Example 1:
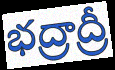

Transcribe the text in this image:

భద్రాద్రీ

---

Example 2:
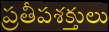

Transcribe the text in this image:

ప్రతీపశక్తులు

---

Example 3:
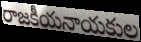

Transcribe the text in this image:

రాజకీయనాయకుల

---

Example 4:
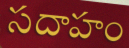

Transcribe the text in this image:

సదాహం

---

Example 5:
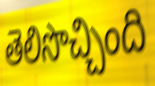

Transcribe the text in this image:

తెలిసొచ్చింది